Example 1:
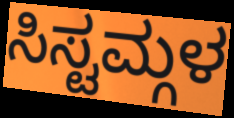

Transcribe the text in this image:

ಸಿಸ್ಟಮ್ಗಳ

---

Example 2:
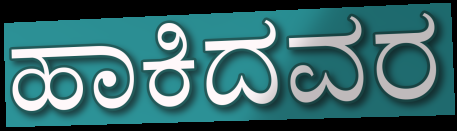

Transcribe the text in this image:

ಹಾಕಿದವರ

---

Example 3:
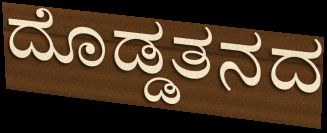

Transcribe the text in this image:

ದೊಡ್ಡತನದ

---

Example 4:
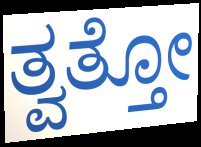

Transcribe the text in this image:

ತ್ವತ್ತೋ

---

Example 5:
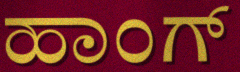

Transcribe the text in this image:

ಹಾಂಗ್